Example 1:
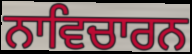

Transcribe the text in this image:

ਨਾਵਿਚਾਰਨ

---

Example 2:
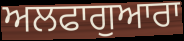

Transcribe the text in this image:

ਅਲਫਾਗੁਆਰਾ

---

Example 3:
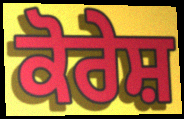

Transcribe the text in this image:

ਕੋਰੇਸ਼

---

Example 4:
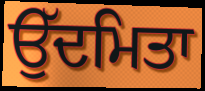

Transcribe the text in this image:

ਉੱਦਮਿਤਾ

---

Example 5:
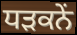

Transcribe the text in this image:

ਧੜਕਨੇਂ